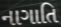
નાગાતિ